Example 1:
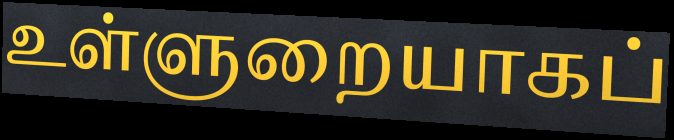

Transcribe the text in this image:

உள்ளுறையாகப்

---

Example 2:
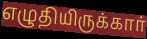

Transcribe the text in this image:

எழுதியிருக்கார்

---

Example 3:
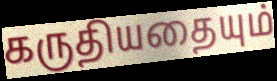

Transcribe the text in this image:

கருதியதையும்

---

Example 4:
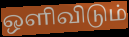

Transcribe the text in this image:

ஒளிவிடும்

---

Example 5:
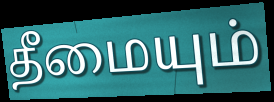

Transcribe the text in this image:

தீமையும்